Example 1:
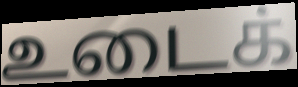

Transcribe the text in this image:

உடைக்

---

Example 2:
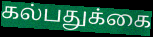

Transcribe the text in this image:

கல்பதுக்கை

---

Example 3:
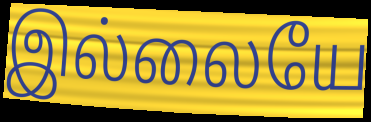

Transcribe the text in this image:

இல்லையே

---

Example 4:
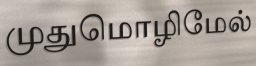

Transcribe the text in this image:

முதுமொழிமேல்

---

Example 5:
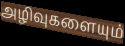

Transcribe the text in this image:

அழிவுகளையும்